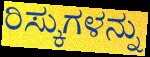
ರಿಸ್ಕುಗಳನ್ನು